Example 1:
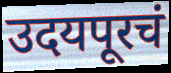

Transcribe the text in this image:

उदयपूरचं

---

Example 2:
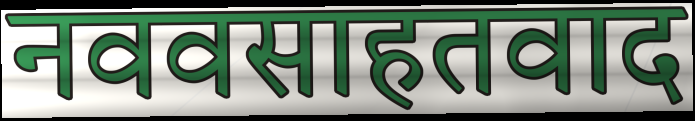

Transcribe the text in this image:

नववसाहतवाद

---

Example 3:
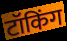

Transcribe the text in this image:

टॉकिंग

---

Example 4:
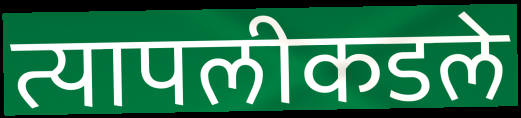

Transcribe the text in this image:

त्यापलीकडले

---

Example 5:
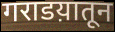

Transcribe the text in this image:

गराडय़ातून